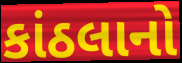
કાંઠલાનો